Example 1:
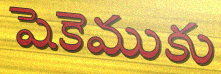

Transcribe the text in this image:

షెకెముకు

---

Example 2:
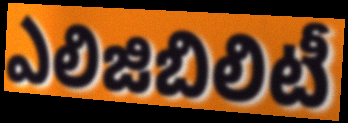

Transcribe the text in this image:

ఎలిజిబిలిటీ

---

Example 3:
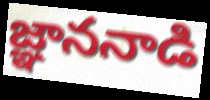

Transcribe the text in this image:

జ్ఞాననాడి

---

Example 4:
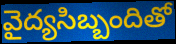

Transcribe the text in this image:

వైద్యసిబ్బందితో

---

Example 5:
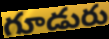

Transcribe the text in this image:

గూడురు